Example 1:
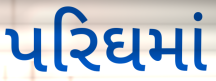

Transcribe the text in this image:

પરિઘમાં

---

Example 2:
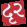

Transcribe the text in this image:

દૃર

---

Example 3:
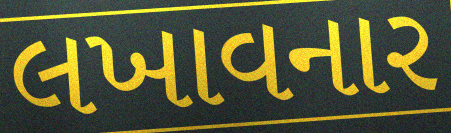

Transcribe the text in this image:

લખાવનાર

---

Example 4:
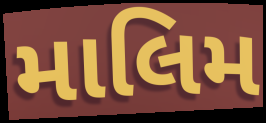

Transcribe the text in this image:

માલિમ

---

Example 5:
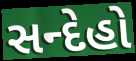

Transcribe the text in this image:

સન્દેહો